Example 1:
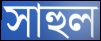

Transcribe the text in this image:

সাহুল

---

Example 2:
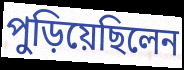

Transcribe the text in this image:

পুড়িয়েছিলেন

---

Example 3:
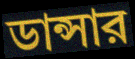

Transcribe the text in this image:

ডান্সার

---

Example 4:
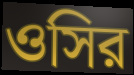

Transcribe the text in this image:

ওসির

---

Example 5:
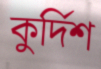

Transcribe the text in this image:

কুর্দিশ